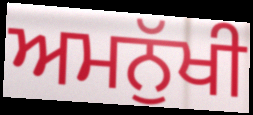
ਅਮਨੁੱਖੀ